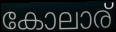
കോലാര്